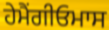
ਹੇਮੈਂਗੀਓਮਾਸ